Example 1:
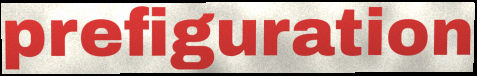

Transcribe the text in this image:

prefiguration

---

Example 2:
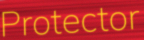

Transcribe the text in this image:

Protector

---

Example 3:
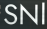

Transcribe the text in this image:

SNl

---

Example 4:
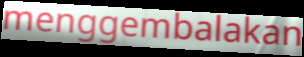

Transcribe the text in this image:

menggembalakan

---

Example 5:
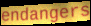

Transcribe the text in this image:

endangers